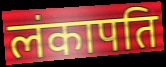
लंकापति